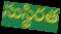
సుస్థిరత